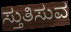
ಸ್ತುತಿಸುವ